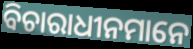
ବିଚାରାଧୀନମାନେ